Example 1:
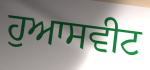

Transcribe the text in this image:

ਹੁਆਸਵੀਟ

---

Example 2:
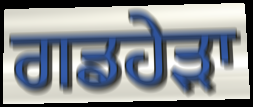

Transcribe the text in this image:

ਗਡਹੇੜਾ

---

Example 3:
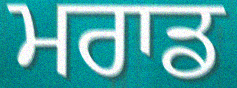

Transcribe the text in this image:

ਮਰਾਡ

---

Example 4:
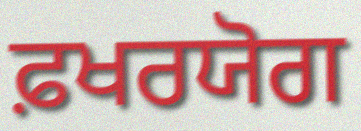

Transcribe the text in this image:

ਫ਼ਖਰਯੋਗ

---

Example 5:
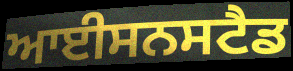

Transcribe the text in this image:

ਆਈਸਨਸਟੈਡ